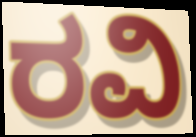
ರವಿ